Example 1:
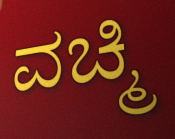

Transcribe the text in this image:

ವಚ್ಮಿ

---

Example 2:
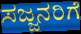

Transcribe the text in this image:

ಸಜ್ಜನರಿಗೆ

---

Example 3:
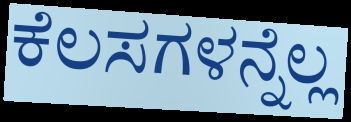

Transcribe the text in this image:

ಕೆಲಸಗಳನ್ನೆಲ್ಲ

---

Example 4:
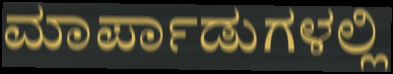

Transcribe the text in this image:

ಮಾರ್ಪಾಡುಗಳಲ್ಲಿ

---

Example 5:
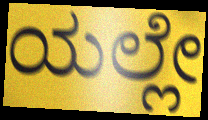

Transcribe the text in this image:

ಯಲ್ಲೇ